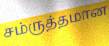
சம்ருத்தமான